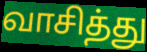
வாசித்து